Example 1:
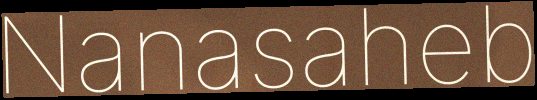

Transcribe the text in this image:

Nanasaheb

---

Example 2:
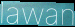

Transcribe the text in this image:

lawan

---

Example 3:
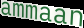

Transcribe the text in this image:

ammaan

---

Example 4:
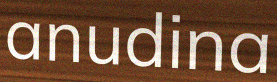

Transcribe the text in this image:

anudina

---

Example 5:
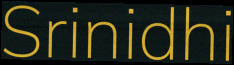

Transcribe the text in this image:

Srinidhi